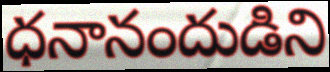
ధనానందుడిని